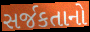
સર્જકતાનો